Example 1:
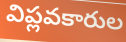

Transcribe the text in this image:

విప్లవకారుల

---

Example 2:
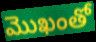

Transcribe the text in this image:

మొఖంతో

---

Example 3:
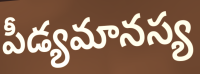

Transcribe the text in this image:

పీడ్యమానస్య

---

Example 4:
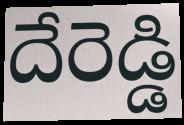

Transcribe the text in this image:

దేరెడ్డి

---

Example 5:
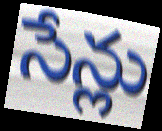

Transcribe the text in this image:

సేన్లు